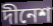
দীনেশ